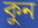
কুন